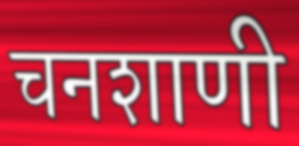
चनशाणी